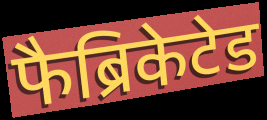
फैब्रिकेटेड